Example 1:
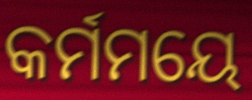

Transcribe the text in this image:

କର୍ମମୟେ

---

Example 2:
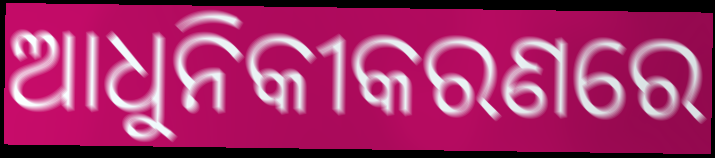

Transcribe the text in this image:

ଆଧୁନିକୀକରଣରେ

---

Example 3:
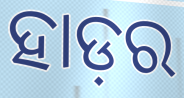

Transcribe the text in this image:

ହାଡ଼ର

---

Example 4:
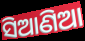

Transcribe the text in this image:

ସିଆଣିଆ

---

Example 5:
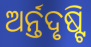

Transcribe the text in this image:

ଅର୍ନ୍ତଦୃଷ୍ଟି